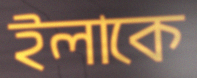
ইলাকে